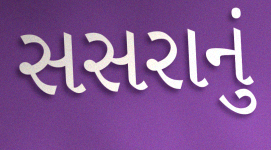
સસરાનું